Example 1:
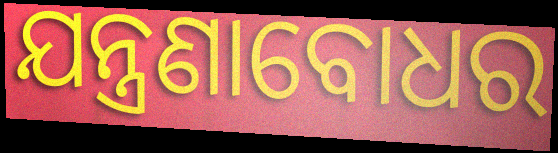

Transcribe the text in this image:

ଯନ୍ତ୍ରଣାବୋଧର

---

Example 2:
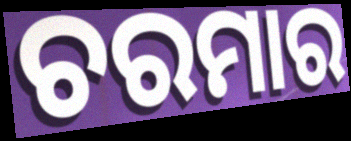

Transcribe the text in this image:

ଚରମାର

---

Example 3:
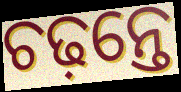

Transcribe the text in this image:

ଚଢ଼ନ୍ତେ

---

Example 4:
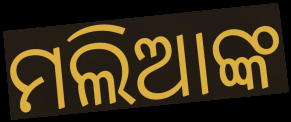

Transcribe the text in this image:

ମଲିଆଙ୍କ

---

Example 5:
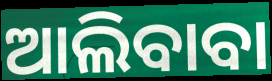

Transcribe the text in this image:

ଆଲିବାବା